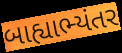
બાહ્યાભ્યંતર